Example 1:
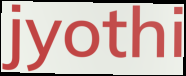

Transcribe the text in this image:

jyothi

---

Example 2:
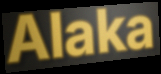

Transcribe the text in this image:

Alaka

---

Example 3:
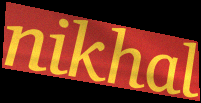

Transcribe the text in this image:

nikhal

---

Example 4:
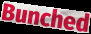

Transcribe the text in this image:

Bunched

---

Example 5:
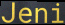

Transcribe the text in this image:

Jeni